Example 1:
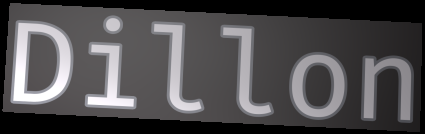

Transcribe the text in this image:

Dillon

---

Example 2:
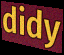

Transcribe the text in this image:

didy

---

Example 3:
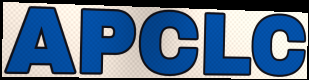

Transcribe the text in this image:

APCLC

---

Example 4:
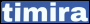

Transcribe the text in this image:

timira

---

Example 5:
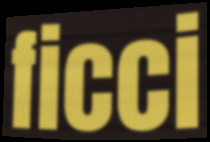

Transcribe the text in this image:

ficci